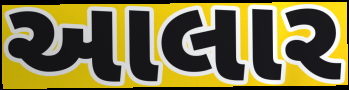
આલાર